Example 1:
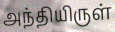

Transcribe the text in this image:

அந்தியிருள்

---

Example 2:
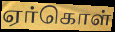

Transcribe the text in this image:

ஏர்கொள்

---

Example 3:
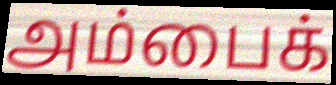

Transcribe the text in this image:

அம்பைக்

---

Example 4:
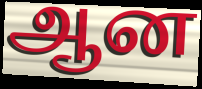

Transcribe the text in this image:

ஆன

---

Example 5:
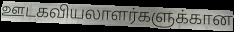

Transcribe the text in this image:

ஊடகவியலாளர்களுக்கான